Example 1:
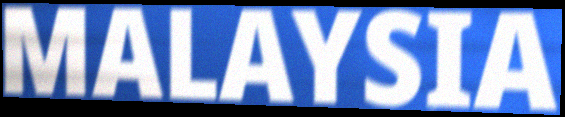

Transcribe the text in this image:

MALAYSIA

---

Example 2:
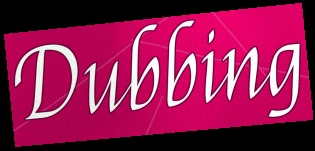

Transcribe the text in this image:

Dubbing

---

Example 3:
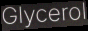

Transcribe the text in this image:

Glycerol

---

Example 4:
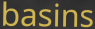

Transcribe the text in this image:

basins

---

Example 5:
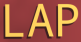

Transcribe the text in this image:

LAP